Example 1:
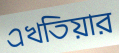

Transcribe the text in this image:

এখতিয়ার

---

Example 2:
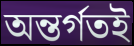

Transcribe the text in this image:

অন্তর্গতই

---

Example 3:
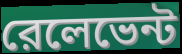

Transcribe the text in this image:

রেলেভেন্ট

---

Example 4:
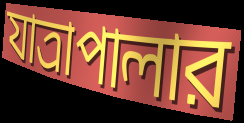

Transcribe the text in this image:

যাত্রাপালার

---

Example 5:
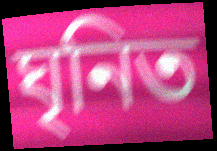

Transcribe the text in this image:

ঘৃনিত